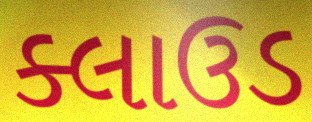
ક્લાઉડ